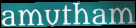
amutham